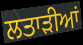
ਲਤਾੜੀਆਂ